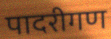
पादरीगण